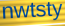
nwtsty